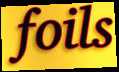
foils